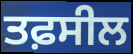
ਤਫ਼ਸੀਲ